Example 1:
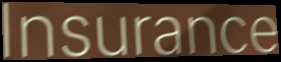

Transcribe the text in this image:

Insurance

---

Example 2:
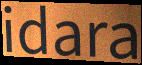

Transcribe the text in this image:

idara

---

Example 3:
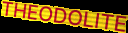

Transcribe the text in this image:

THEODOLITE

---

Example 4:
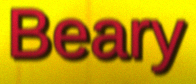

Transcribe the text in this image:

Beary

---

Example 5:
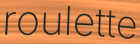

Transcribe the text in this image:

roulette